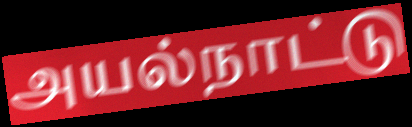
அயல்நாட்டு